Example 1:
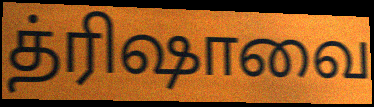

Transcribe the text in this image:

த்ரிஷாவை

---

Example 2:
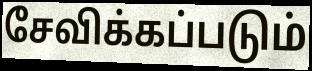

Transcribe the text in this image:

சேவிக்கப்படும்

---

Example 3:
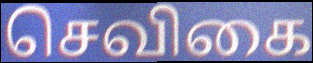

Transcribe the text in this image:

செவிகை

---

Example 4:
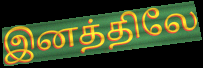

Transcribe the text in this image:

இனத்திலே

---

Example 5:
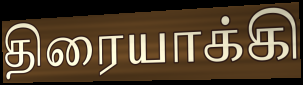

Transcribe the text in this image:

திரையாக்கி